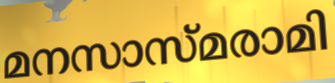
മനസാസ്മരാമി